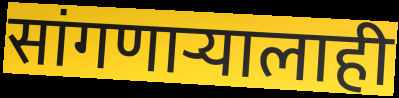
सांगणाऱ्यालाही